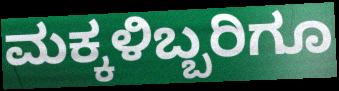
ಮಕ್ಕಳಿಬ್ಬರಿಗೂ